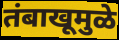
तंबाखूमुळे